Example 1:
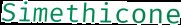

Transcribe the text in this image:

Simethicone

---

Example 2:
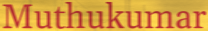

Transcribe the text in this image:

Muthukumar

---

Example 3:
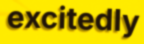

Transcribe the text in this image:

excitedly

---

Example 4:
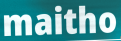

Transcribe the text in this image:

maitho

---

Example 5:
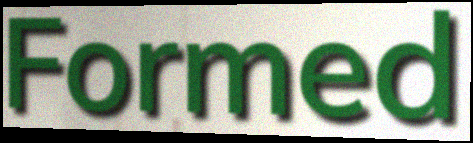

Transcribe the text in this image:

Formed